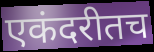
एकंदरीतच